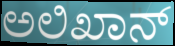
ಅಲಿಖಾನ್